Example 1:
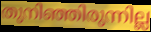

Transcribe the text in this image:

തുനിഞ്ഞിരുന്നില്ല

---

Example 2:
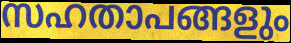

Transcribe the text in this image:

സഹതാപങ്ങളും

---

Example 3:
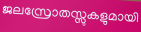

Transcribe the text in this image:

ജലസ്രോതസ്സുകളുമായി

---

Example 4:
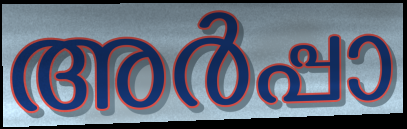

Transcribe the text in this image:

അർപ്പാ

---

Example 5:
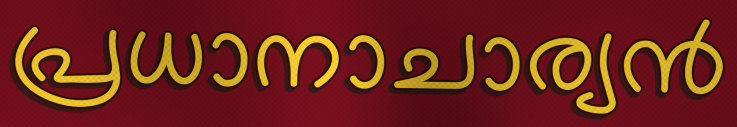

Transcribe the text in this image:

പ്രധാനാചാര്യൻ